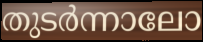
തുടർന്നാലോ